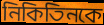
নিকিতিনকে